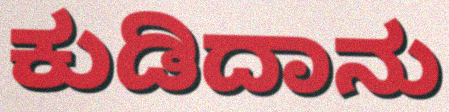
ಕುಡಿದಾನು